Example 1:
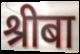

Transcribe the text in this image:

श्रीबा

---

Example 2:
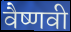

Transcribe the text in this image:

वैष्णवी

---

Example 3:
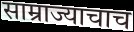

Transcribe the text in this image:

साम्राज्याचाच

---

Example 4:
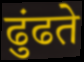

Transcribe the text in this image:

ढुंढते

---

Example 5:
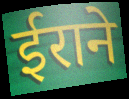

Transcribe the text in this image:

ईराने